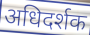
अधिदर्शक